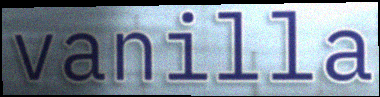
vanilla